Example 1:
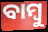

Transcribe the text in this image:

ବାମ୍ବୁ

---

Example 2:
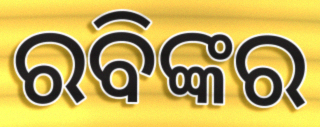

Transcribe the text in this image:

ରବିଙ୍କର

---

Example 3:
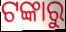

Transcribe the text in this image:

ଟଙ୍କାରୁ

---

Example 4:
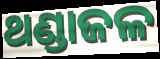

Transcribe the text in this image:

ଥଣ୍ଡାଜଳ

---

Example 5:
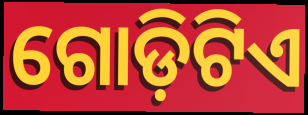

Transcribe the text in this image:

ଗୋଡ଼ିଟିଏ